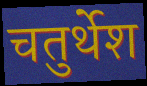
चतुर्थेश